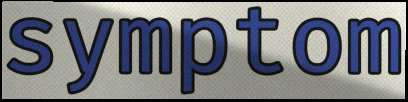
symptom